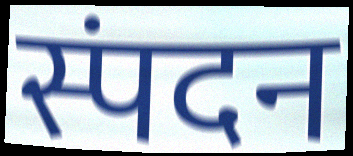
स्पंदन